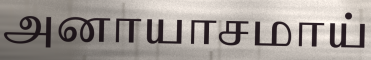
அனாயாசமாய்